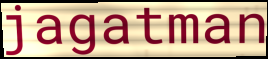
jagatman